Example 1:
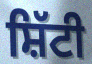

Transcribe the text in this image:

ਸ਼ਿੱਟੀ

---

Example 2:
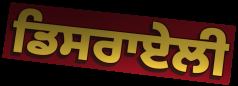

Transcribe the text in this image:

ਡਿਸਰਾਏਲੀ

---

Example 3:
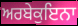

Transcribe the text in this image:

ਅਰਬੇਕੁਇਨਾ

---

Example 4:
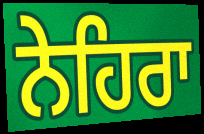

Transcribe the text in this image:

ਨੇਹਿਰਾ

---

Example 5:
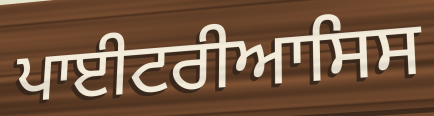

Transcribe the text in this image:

ਪਾਈਟਰੀਆਸਿਸ